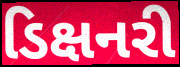
ડિક્ષનરી